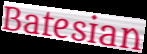
Batesian